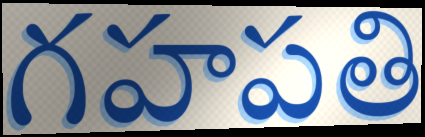
గహపతి